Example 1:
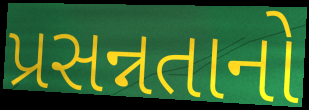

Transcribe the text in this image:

પ્રસન્નતાનો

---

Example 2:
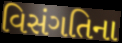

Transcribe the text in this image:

વિસંગતિના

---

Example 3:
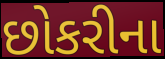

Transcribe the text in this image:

છોકરીના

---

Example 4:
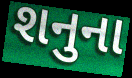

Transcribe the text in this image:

શનુના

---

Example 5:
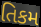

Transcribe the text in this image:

તિકમ